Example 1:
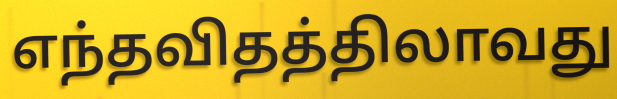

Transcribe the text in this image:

எந்தவிதத்திலாவது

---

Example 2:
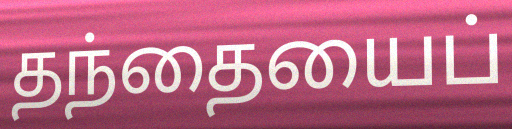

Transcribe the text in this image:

தந்தையைப்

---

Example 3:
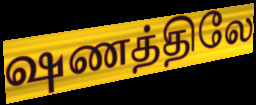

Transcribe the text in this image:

ஷணத்திலே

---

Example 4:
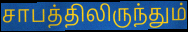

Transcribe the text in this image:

சாபத்திலிருந்தும்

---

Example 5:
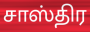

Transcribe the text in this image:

சாஸ்திர